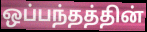
ஒப்பந்தத்தின்